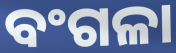
ବଂଗଳା